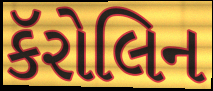
કૅરોલિન